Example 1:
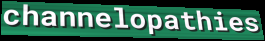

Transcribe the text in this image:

channelopathies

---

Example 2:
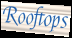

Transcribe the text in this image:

Rooftops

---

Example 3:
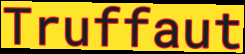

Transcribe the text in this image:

Truffaut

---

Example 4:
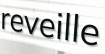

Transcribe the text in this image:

reveille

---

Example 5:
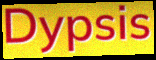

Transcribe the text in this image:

Dypsis